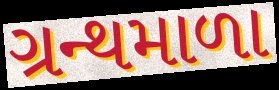
ગ્રન્થમાળા